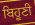
ਬਿਹੂਣੀ